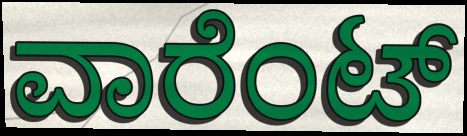
ವಾರೆಂಟ್